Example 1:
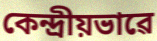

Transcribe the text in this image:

কেন্দ্ৰীয়ভাৱে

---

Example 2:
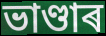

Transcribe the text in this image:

ভাণ্ডাৰ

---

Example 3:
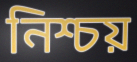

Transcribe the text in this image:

নিশ্চয়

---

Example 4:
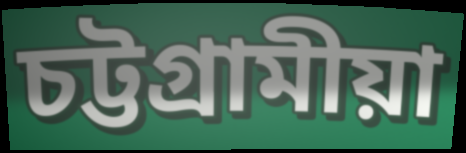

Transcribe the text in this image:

চট্টগ্ৰামীয়া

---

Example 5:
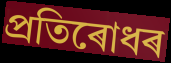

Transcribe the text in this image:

প্ৰতিৰোধৰ